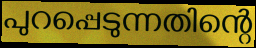
പുറപ്പെടുന്നതിന്റെ